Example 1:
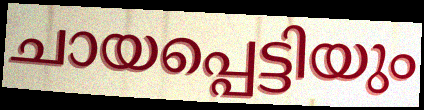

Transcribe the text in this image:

ചായപ്പെട്ടിയും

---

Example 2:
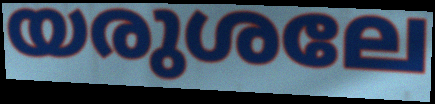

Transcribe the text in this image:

യരുശലേ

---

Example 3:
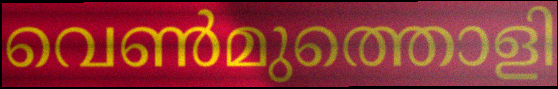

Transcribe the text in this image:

വെൺമുത്തൊളി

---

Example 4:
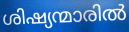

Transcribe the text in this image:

ശിഷ്യന്മാരിൽ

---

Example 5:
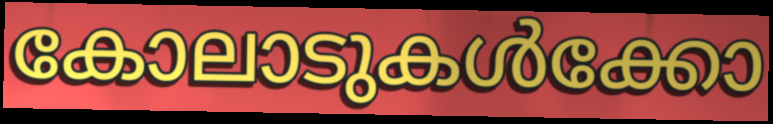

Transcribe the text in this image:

കോലാടുകൾക്കോ